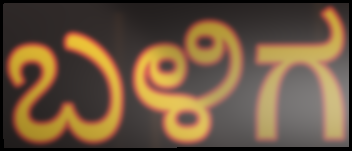
ಬಳಿಗ